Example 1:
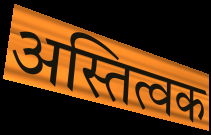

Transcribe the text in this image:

अस्तित्वक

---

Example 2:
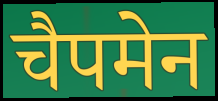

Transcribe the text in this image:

चैपमेन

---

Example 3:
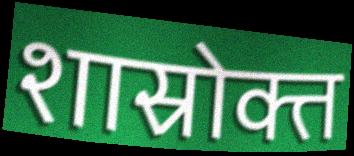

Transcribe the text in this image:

शास्रोक्त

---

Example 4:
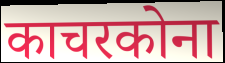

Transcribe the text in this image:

काचरकोना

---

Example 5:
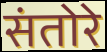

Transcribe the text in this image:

संतोरे